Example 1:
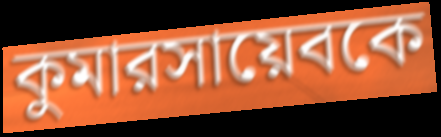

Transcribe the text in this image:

কুমারসায়েবকে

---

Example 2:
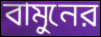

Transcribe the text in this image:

বামুনের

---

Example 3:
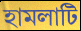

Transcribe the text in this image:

হামলাটি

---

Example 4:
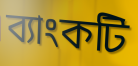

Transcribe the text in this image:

ব্যাংকটি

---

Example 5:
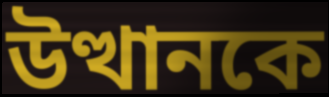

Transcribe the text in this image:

উত্থানকে